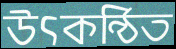
উৎকন্ঠিত